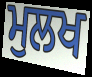
ਮੁਲਖ